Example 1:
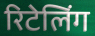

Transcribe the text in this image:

रिटेलिंग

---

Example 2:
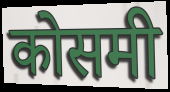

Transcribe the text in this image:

कोसमी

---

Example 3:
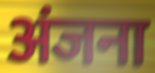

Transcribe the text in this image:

अंजना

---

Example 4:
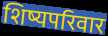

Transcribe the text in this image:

शिष्यपरिवार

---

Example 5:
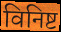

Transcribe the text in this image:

विनिष्ट